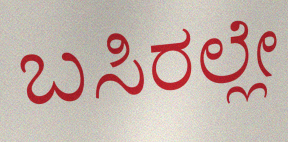
ಬಸಿರಲ್ಲೇ